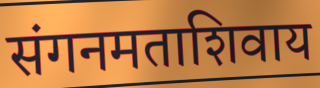
संगनमताशिवाय